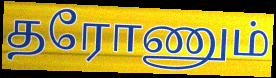
தரோணும்